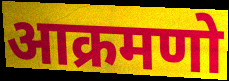
आक्रमणो